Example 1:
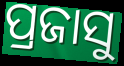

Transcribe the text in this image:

ପ୍ରଜାସୁ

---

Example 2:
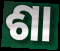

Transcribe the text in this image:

ଶା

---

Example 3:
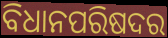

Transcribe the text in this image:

ବିଧାନପରିଷଦର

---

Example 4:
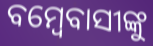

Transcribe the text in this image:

ବମ୍ବେବାସୀଙ୍କୁ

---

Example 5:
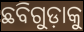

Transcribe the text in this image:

ଛବିଗୁଡ଼ାକୁ